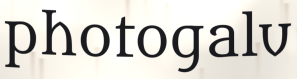
photogalu